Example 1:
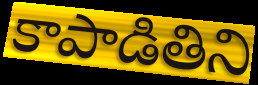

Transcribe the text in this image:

కాపాడితిని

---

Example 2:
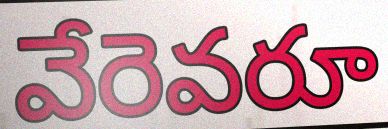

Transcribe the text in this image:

వేరెవరూ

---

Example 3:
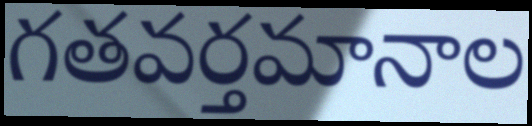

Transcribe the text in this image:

గతవర్తమానాల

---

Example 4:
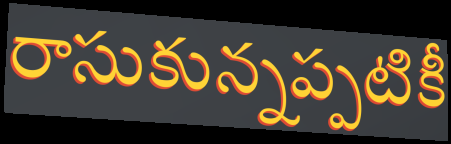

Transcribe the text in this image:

రాసుకున్నప్పటికీ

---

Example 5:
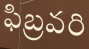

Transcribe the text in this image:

ఫిబ్రవరి